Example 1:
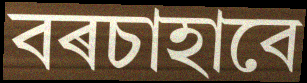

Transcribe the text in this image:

বৰচাহাবে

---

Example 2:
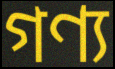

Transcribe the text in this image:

গণ্য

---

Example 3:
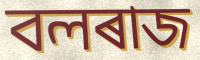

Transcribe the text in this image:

বলৰাজ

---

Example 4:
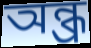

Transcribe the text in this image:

অন্ধ্ৰ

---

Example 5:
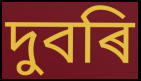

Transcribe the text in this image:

দুবৰি